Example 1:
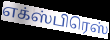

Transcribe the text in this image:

எக்ஸ்பிரெஸ்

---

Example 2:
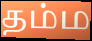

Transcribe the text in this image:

தம்ம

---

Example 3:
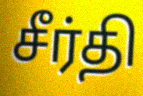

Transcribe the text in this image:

சீர்தி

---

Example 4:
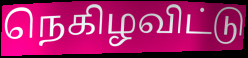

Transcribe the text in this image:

நெகிழவிட்டு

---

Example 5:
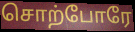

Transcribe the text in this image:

சொற்போரே